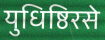
युधिष्ठिरसे